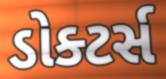
ડોક્ટર્સ